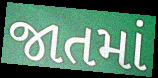
જાતમાં